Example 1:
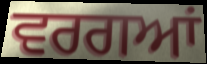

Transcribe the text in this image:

ਵਰਗਆਂ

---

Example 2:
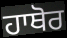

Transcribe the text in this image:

ਹਾਥੋਰ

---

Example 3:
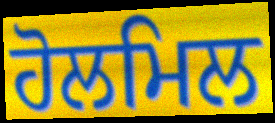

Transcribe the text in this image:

ਹੋਲਮਿਲ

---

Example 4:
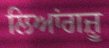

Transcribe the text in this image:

ਲਿਆਂਗਜ਼ੂ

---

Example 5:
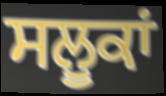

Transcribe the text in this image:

ਸਲੂਕਾਂ